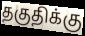
தகுதிக்கு